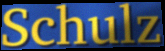
Schulz